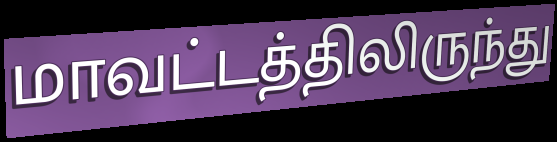
மாவட்டத்திலிருந்து